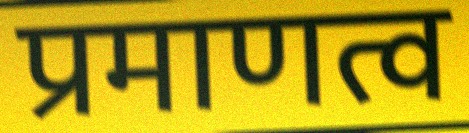
प्रमाणत्व